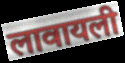
लावायली